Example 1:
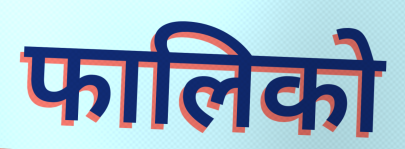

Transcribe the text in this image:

फालिको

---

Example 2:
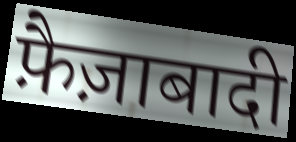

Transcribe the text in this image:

फ़ैज़ाबादी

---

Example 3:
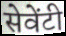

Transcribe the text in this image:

सेवेंटी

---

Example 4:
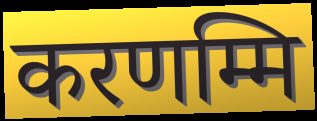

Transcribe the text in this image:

करणम्मि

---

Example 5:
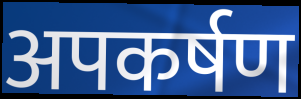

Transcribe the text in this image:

अपकर्षण